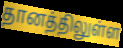
தானத்திலுள்ள